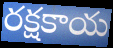
రక్షకాయ